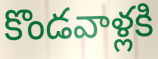
కొండవాళ్లకి